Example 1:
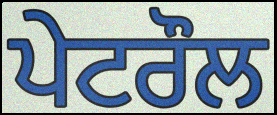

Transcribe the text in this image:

ਪੇਟਰੌਲ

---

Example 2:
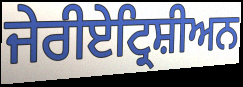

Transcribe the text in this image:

ਜੇਰੀਏਟ੍ਰਿਸ਼ੀਅਨ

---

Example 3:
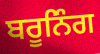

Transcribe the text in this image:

ਬਰੂਨਿੰਗ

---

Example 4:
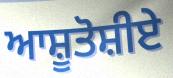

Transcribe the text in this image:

ਆਸ਼ੂਤੋਸ਼ੀਏ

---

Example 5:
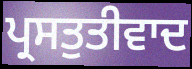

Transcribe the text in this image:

ਪ੍ਰਸਤੁਤੀਵਾਦ